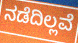
ನಡೆದಿಲ್ಲವೆ